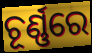
ଚୂର୍ଣ୍ଣରେ